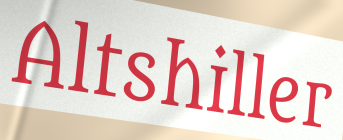
Altshiller